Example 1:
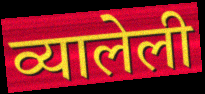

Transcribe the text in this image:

व्यालेली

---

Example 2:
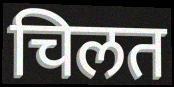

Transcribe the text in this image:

चिलत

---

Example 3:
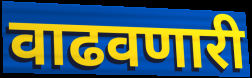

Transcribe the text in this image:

वाढवणारी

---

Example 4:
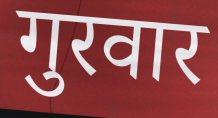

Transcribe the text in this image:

गुरवार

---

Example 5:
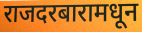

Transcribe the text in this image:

राजदरबारामधून